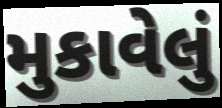
મુકાવેલું